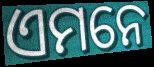
ଏମନେ